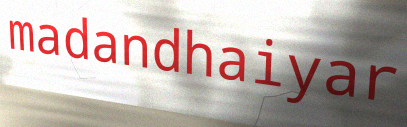
madandhaiyar